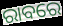
ରାବରେ